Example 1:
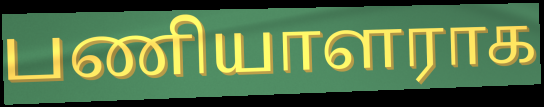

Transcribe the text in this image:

பணியாளராக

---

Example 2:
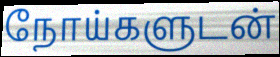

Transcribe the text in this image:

நோய்களுடன்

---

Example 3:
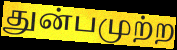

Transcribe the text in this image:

துன்பமுற்ற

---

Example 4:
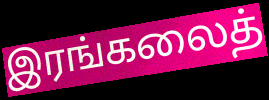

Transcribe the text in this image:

இரங்கலைத்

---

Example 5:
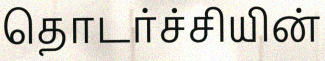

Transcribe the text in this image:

தொடர்ச்சியின்